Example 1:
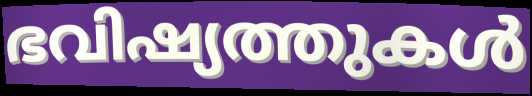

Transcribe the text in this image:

ഭവിഷ്യത്തുകൾ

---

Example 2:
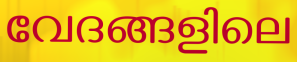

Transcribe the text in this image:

വേദങ്ങളിലെ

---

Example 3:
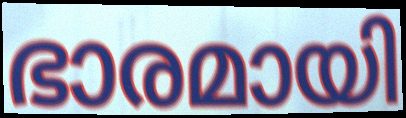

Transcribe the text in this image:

ഭാരമായി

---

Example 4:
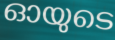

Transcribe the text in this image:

ഓയുടെ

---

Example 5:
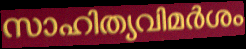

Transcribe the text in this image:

സാഹിത്യവിമർശം